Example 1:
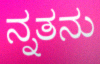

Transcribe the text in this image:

ನ್ನತನು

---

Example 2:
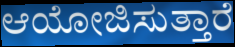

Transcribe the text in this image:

ಆಯೋಜಿಸುತ್ತಾರೆ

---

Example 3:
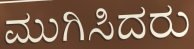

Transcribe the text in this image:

ಮುಗಿಸಿದರು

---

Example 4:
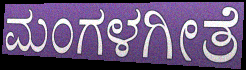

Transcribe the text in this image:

ಮಂಗಳಗೀತೆ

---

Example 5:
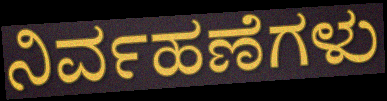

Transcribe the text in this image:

ನಿರ್ವಹಣೆಗಳು